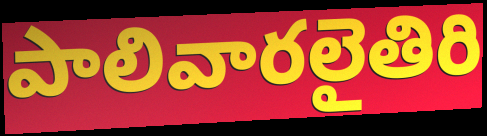
పాలివారలైతిరి